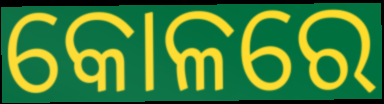
କୋଳରେ